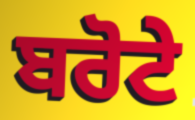
ਬਰੋਟੇ